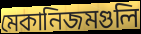
মেকানিজমগুলি